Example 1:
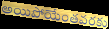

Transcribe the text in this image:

అయిపోయేంతవరకు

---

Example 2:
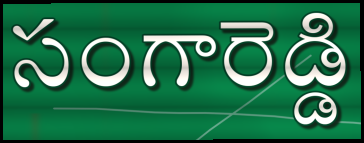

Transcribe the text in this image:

సంగారెడ్డి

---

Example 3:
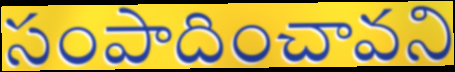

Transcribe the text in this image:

సంపాదించావని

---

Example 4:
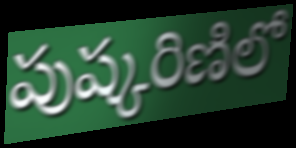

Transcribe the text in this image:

పుష్కరిణిలో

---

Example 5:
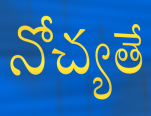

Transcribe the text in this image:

నోచ్యతే